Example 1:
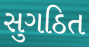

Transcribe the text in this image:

સુગઠિત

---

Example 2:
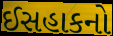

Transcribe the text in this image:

ઈસહાકનો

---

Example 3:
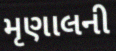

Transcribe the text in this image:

મૃણાલની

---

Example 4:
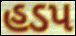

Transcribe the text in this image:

હડપ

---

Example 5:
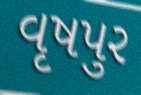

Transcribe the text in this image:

વૃષપુર